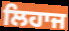
ਲਿਹਾਜ